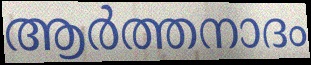
ആർത്തനാദം